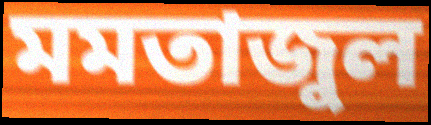
মমতাজুল